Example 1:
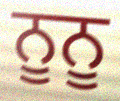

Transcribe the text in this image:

ਨੂਨੂ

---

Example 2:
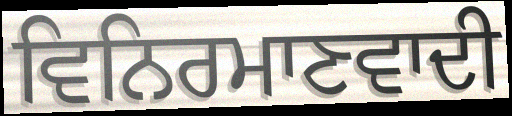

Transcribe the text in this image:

ਵਿਨਿਰਮਾਣਵਾਦੀ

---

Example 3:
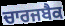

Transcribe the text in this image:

ਚਾਰਜਬੈਕ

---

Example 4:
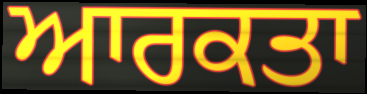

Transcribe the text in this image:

ਆਰਕਤਾ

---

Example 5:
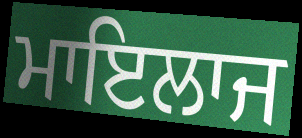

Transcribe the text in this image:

ਮਾਇਲਾਜ